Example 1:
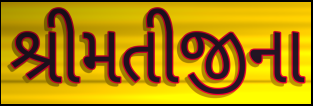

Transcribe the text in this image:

શ્રીમતીજીના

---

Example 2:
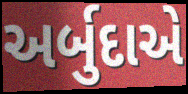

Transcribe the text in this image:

અર્બુદાએ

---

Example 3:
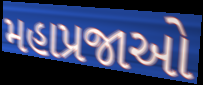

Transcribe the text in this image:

મહાપ્રજાઓ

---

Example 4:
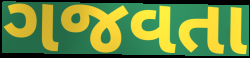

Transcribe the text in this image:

ગજવતા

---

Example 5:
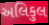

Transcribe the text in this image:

અલિકુલ